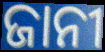
ଜାନୀ